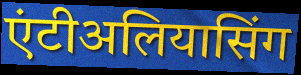
एंटीअलियासिंग